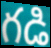
గడి